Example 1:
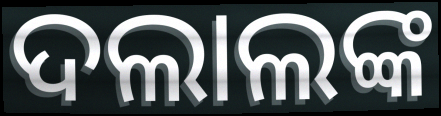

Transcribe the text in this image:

ଦଲାଲଙ୍କ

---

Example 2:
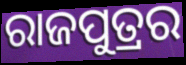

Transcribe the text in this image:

ରାଜପୁତ୍ରର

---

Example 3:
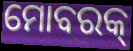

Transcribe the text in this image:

ମୋବରକ୍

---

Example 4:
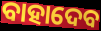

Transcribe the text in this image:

ବାହାଦେବ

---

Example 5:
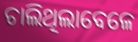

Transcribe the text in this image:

ଚାଲିଥିଲାବେଳେ